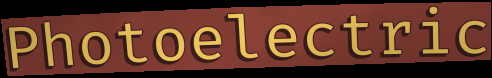
Photoelectric